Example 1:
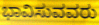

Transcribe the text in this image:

ಭಾವಿಸುವವರು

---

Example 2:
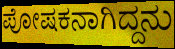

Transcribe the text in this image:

ಪೋಷಕನಾಗಿದ್ದನು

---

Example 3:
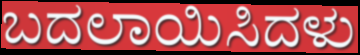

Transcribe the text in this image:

ಬದಲಾಯಿಸಿದಳು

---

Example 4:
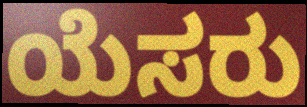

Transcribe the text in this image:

ಯೆಸರು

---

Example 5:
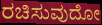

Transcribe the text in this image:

ರಚಿಸುವುದೋ